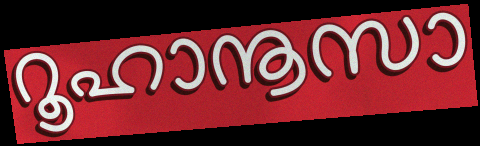
റൂഹാനൂസാ